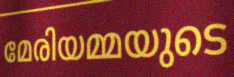
മേരിയമ്മയുടെ